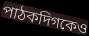
পাঠকদিগকেও